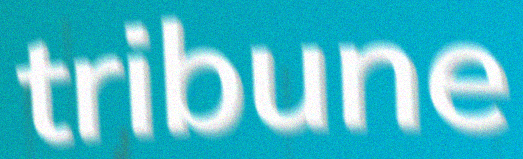
tribune